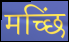
मच्छिं